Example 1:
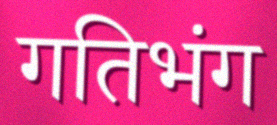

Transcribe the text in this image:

गतिभंग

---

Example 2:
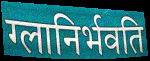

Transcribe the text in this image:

ग्लानिर्भवति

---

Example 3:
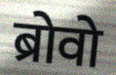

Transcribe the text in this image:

ब्रोवो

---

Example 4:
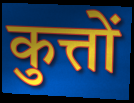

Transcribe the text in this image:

कुत्तों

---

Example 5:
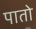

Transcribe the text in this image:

पातो